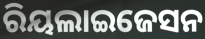
ରିୟଲାଇଜେସନ